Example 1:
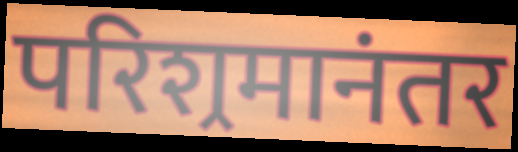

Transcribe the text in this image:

परिश्रमानंतर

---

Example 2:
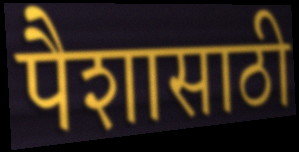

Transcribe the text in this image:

पैशासाठी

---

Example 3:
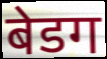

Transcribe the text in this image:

बेडग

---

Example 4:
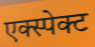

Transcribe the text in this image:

एक्स्पेक्ट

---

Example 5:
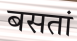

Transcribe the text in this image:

बसतां